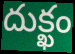
దుక్ఖం